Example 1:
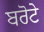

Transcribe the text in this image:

ਬਰੋਟੇ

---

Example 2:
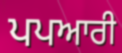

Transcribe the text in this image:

ਪਪਆਰੀ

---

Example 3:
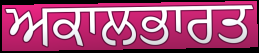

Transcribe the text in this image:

ਅਕਾਲਭਾਰਤ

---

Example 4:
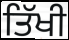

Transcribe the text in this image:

ਤਿੱਖੀ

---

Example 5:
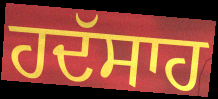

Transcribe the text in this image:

ਹਦੱਸਾਹ